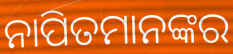
ନାପିତମାନଙ୍କର